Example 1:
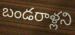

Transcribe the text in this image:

బండరాళ్లని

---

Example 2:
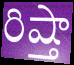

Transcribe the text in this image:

రిష్తా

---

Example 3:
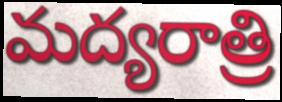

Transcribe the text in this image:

మద్యరాత్రి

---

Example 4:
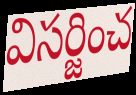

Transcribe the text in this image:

విసర్జించ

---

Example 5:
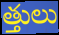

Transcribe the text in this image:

త్తులు